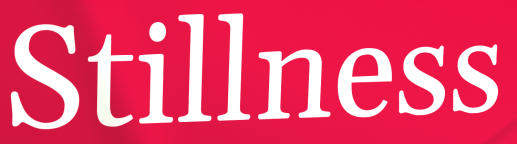
Stillness